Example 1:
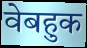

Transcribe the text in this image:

वेबहुक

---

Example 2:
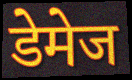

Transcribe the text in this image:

डेमेज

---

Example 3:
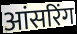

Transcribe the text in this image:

आंसरिंग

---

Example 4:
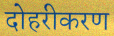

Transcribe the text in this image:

दोहरीकरण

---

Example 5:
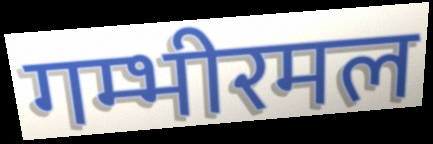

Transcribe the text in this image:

गम्भीरमल